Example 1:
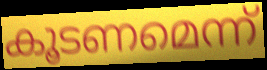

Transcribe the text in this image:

കൂടണമെന്ന്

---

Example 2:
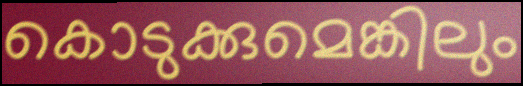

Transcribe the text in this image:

കൊടുക്കുമെങ്കിലും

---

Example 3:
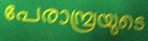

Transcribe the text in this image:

പേരാമ്പ്രയുടെ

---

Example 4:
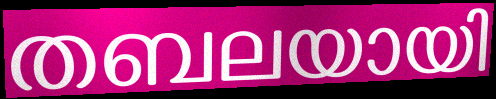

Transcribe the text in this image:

തബലയായി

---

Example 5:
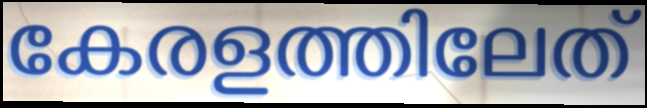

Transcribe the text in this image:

കേരളത്തിലേത്